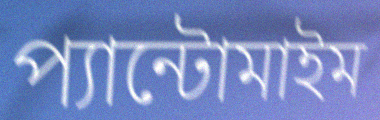
প্যান্টোমাইম